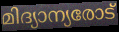
മിദ്യാന്യരോട്